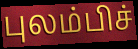
புலம்பிச்